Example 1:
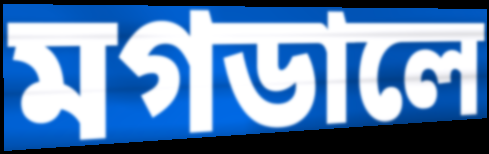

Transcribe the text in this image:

মগডালে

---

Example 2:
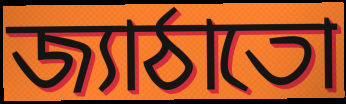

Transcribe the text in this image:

জ্যাঠাতো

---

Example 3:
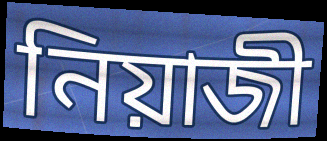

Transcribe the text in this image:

নিয়াজী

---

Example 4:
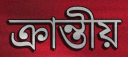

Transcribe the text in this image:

ক্রান্তীয়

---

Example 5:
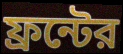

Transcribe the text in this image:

ফ্রন্টের